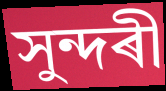
সুন্দৰী